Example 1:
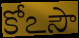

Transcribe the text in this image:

కోఽసౌ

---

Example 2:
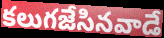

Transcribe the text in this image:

కలుగజేసినవాడే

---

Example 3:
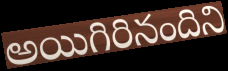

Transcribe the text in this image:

అయిగిరినందిని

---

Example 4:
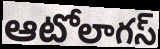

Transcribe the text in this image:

ఆటోలాగస్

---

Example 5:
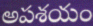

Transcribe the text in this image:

అపశయం